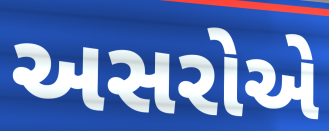
અસરોએ